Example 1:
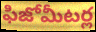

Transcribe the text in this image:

ఫిజోమీటర్ల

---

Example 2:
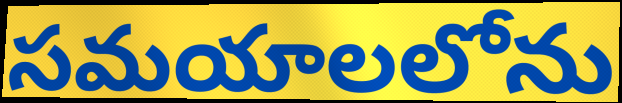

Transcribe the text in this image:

సమయాలలోను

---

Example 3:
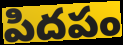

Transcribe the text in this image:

పిదపం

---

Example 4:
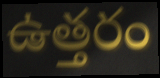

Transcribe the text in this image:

ఉత్తరం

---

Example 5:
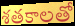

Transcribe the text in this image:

శతకాలతో